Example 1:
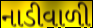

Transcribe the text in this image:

નાડીવાળી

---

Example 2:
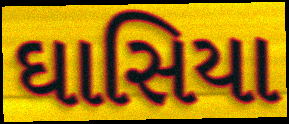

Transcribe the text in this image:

ઘાસિયા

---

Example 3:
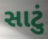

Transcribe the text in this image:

સાટું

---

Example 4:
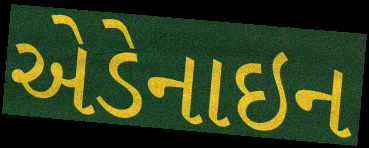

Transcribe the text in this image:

એડેનાઇન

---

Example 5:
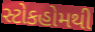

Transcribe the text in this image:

સ્ટોકહોમથી